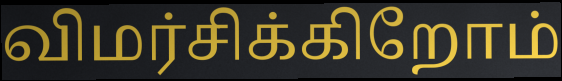
விமர்சிக்கிறோம்